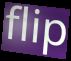
flip